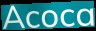
Acoca